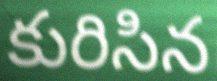
కురిసిన